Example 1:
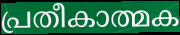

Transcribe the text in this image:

പ്രതീകാത്മക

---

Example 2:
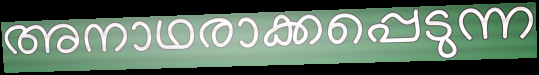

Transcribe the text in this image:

അനാഥരാക്കപ്പെടുന്ന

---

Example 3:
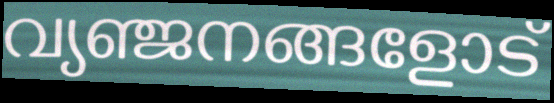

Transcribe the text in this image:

വ്യഞ്ജനങ്ങളോട്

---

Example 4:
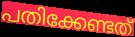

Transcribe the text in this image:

പതിക്കേണ്ടത്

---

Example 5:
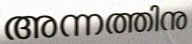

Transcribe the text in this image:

അന്നത്തിനു